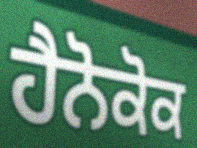
ਹੈਨੋਕੋਕ